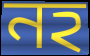
নহ